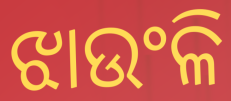
ଝାଉଂଳି